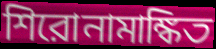
শিরোনামাঙ্কিত